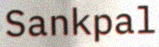
Sankpal